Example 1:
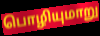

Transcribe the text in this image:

பொழியுமாறு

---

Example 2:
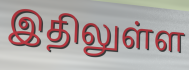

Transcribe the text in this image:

இதிலுள்ள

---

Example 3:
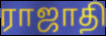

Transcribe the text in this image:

ராஜாதி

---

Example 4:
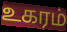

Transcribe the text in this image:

உகரம்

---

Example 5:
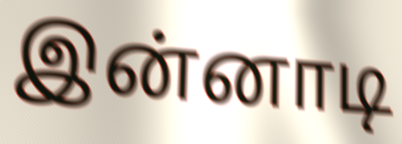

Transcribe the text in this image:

இன்னாடி